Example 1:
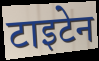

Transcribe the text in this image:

टाइटेन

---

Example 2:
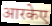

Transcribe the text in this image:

आरकेए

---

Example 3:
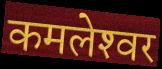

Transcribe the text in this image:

कमलेश्‍वर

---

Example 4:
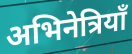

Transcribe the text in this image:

अभिनेत्रियाँ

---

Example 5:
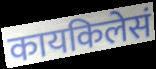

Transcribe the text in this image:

कायकिलेसं